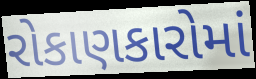
રોકાણકારોમાં